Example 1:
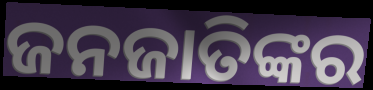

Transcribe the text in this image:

ଜନଜାତିଙ୍କର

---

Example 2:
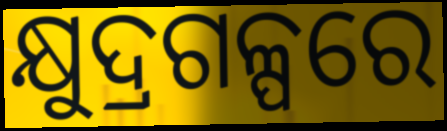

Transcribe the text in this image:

କ୍ଷୁଦ୍ରଗଳ୍ପରେ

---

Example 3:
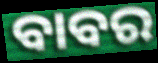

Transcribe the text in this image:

ବାବର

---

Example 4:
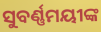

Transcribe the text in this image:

ସୁବର୍ଣ୍ଣମୟୀଙ୍କ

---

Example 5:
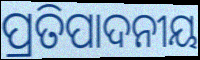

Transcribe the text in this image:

ପ୍ରତିପାଦନୀୟ